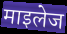
माइलेज